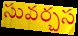
సువర్చస